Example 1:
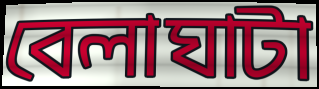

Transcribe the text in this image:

বেলাঘাটা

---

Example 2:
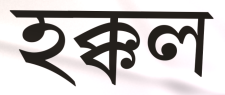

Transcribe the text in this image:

হক্কল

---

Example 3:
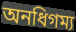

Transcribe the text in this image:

অনধিগম্য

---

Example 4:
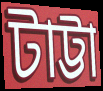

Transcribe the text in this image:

টাট্টা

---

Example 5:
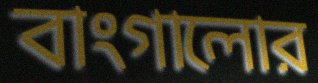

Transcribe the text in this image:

বাংগালোর